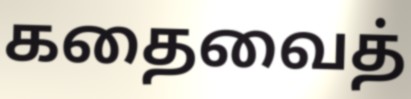
கதைவைத்